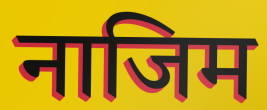
नाजिम